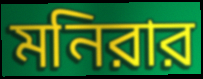
মনিরার